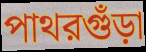
পাথরগুঁড়া